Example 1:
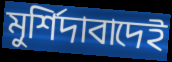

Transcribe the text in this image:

মুর্শিদাবাদেই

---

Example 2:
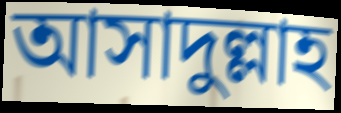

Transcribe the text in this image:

আসাদুল্লাহ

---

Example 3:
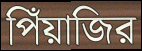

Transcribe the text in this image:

পিঁয়াজির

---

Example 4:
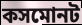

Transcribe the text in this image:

কসমোনট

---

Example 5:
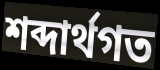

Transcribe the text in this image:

শব্দার্থগত